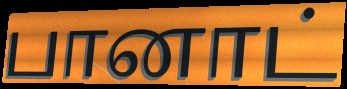
பானாட்